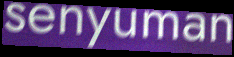
senyuman